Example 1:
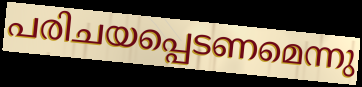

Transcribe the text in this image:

പരിചയപ്പെടണമെന്നു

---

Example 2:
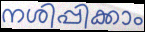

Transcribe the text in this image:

നശിപ്പിക്കാം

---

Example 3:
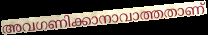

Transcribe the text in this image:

അവഗണിക്കാനാവാത്തതാണ്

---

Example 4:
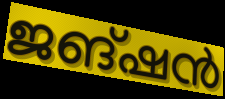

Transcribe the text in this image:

ജങ്ഷൻ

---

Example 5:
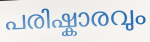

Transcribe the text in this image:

പരിഷ്കാരവും